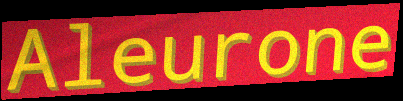
Aleurone